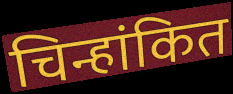
चिन्हांकित